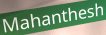
Mahanthesh